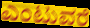
ಎಂಟುವರೆ